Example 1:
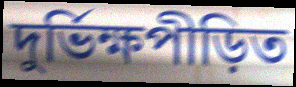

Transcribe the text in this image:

দুৰ্ভিক্ষপীড়িত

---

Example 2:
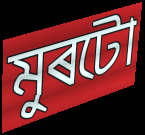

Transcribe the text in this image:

মুৰটো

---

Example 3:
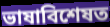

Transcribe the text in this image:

ভাষাবিশেষত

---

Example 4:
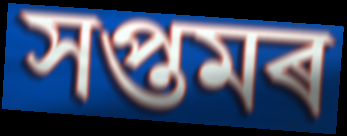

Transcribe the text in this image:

সপ্তমৰ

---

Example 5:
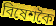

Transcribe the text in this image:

বিষেশকৈ